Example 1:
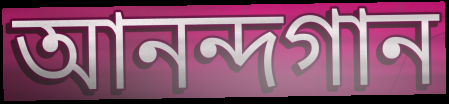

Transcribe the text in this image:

আনন্দগান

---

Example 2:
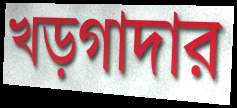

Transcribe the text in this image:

খড়গাদার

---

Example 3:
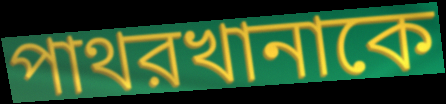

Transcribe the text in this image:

পাথরখানাকে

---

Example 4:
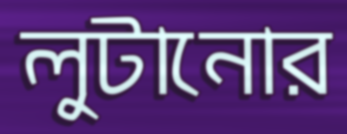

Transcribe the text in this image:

লুটানোর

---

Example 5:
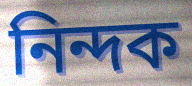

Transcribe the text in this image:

নিন্দক